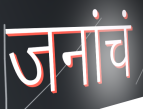
जनांचं